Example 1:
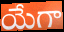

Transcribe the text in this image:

యేగా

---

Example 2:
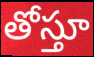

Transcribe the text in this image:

తోస్తూ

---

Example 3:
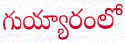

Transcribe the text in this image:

గుయ్యారంలో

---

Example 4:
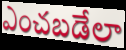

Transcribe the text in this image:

ఎంచబడేలా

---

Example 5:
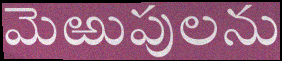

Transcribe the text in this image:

మెఱుపులను